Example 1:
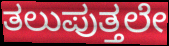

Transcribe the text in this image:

ತಲುಪುತ್ತಲೇ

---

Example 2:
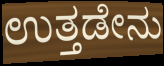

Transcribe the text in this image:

ಉತ್ತಡೇನು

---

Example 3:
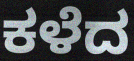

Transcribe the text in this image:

ಕಳೆದ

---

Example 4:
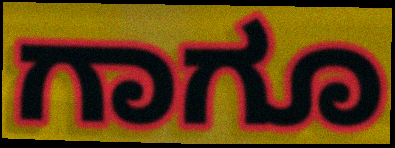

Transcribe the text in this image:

ಗಾಗೂ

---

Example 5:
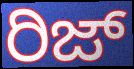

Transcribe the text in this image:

ರಿಜ್